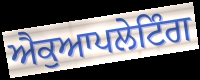
ਐਕੁਆਪਲੇਟਿੰਗ